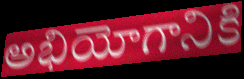
అభియోగానికి